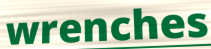
wrenches